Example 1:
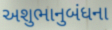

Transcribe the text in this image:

અશુભાનુબંધના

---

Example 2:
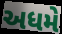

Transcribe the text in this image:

અધમે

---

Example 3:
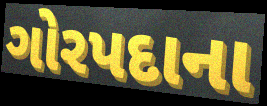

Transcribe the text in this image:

ગોરપદાના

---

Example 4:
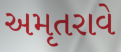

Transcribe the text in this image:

અમૃતરાવે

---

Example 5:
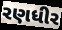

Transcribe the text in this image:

રણધીર